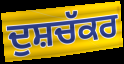
ਦੁਸ਼ਚੱਕਰ